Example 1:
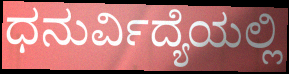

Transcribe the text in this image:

ಧನುರ್ವಿದ್ಯೆಯಲ್ಲಿ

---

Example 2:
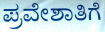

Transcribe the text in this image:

ಪ್ರವೇಶಾತಿಗೆ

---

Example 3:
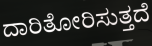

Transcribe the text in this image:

ದಾರಿತೋರಿಸುತ್ತದೆ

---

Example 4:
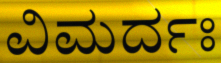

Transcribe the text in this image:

ವಿಮರ್ದಃ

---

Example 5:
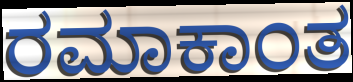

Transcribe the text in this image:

ರಮಾಕಾಂತ